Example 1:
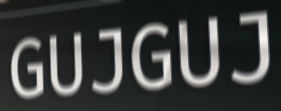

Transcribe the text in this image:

GUJGUJ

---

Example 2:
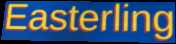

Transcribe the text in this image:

Easterling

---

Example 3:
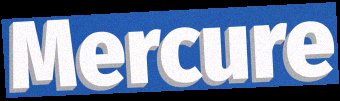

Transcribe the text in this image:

Mercure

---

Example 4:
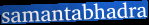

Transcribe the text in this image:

samantabhadra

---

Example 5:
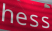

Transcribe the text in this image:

hess